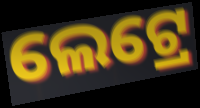
ଲେଟ୍ରେ